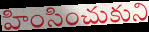
హింసించుకుని